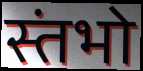
स्तंभो